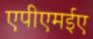
एपीएमईए